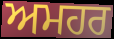
ਅਮਹਰ